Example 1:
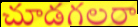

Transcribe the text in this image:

చూడగలరా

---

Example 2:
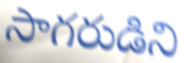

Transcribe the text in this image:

సాగరుడిని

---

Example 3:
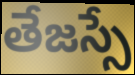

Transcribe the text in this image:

తేజస్సే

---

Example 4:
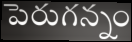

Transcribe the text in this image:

పెరుగన్నం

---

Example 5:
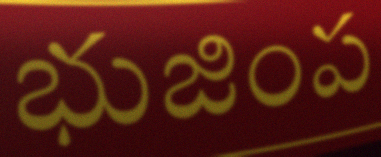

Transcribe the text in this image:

భుజింప